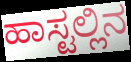
ಹಾಸ್ಟಲ್ಲಿನ